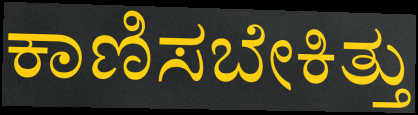
ಕಾಣಿಸಬೇಕಿತ್ತು